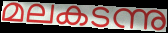
മലകടന്നു